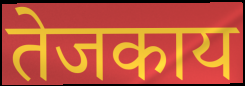
तेजकाय